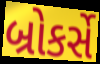
બ્રોકર્સે